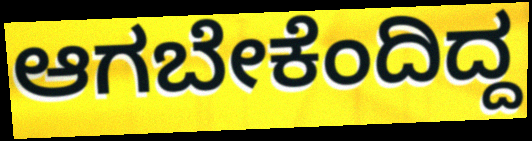
ಆಗಬೇಕೆಂದಿದ್ದ